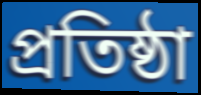
প্রতিষ্ঠা